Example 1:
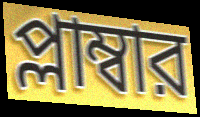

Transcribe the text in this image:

প্লাম্বার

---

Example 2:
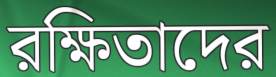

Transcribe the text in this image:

রক্ষিতাদের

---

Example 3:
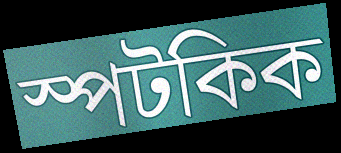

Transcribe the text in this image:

স্পটকিক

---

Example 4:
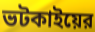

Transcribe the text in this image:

ভটকাইয়ের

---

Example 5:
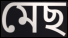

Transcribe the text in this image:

মেছ